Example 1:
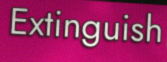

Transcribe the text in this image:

Extinguish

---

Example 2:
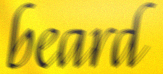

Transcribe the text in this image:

beard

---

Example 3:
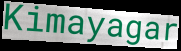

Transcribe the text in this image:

Kimayagar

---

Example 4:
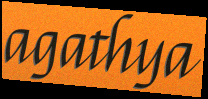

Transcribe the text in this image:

agathya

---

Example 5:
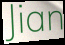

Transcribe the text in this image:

Jian